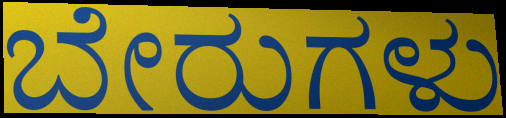
ಬೇರುಗಳು